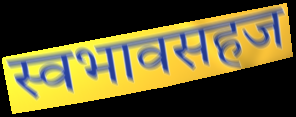
स्वभावसहज